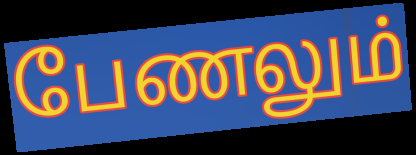
பேணலும்